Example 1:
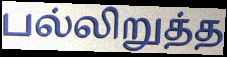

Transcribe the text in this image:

பல்லிறுத்த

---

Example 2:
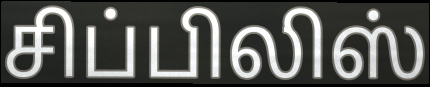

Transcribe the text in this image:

சிப்பிலிஸ்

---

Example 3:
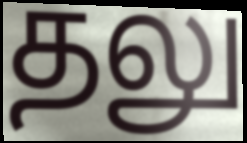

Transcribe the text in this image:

தலு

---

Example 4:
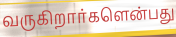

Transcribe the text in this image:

வருகிறார்களென்பது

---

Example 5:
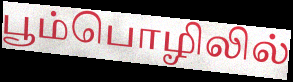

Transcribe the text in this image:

பூம்பொழிலில்